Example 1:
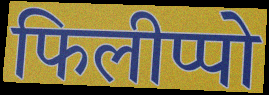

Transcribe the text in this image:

फिलीप्पो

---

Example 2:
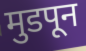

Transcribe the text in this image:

मुडपून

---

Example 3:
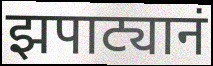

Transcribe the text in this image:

झपाट्यानं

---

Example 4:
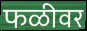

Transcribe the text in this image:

फळीवर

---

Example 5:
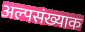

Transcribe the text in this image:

अल्पसंख्याक